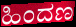
ಹಿಂದಣ